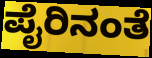
ಪೈರಿನಂತೆ